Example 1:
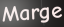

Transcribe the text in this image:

Marge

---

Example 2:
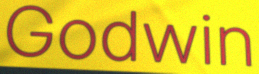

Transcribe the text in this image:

Godwin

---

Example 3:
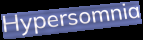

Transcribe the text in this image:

Hypersomnia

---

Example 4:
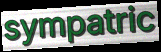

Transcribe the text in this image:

sympatric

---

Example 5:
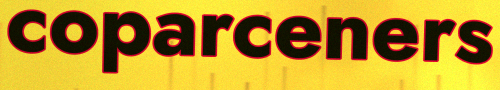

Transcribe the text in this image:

coparceners